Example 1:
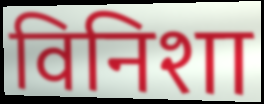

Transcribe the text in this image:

विनिशा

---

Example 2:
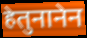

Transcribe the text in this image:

हेतुनानेन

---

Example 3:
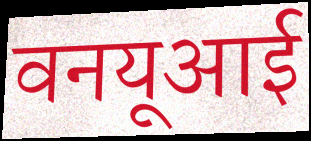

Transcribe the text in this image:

वनयूआई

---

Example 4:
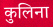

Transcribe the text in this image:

कुलिना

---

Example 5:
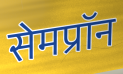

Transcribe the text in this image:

सेमप्रॉन